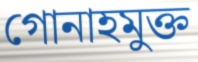
গোনাহমুক্ত